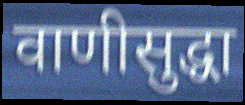
वाणीसुद्धा